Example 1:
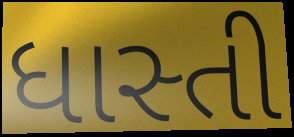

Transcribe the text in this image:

ધાસ્તી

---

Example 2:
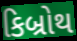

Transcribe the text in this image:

કિબ્રોથ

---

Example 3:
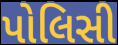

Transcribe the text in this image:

પોલિસી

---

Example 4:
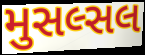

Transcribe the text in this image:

મુસલ્સલ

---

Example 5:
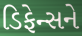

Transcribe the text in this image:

ડિફેન્સને